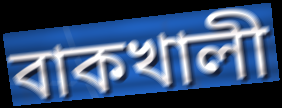
বাকখালী